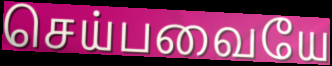
செய்பவையே